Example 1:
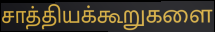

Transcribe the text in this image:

சாத்தியக்கூறுகளை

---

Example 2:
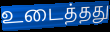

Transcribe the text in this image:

உடைத்தது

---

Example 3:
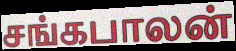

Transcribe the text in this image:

சங்கபாலன்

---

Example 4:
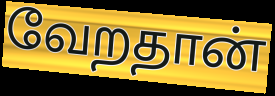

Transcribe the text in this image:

வேறதான்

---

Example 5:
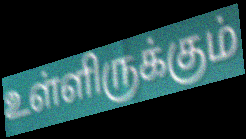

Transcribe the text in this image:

உள்ளிருக்கும்